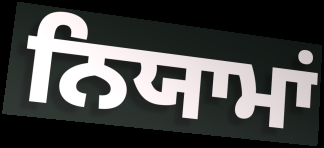
ਨਿਯਾਮਾਂ